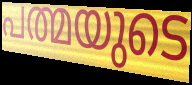
പത്മയുടെ